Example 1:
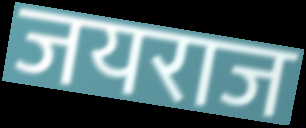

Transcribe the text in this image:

जयराज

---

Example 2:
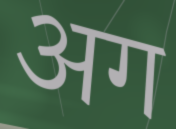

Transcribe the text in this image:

अग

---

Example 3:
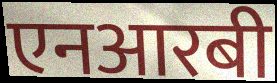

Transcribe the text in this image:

एनआरबी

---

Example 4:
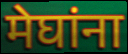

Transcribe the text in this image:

मेघांना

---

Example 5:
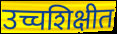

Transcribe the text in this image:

उच्चशिक्षीत